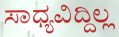
ಸಾಧ್ಯವಿದ್ದಿಲ್ಲ